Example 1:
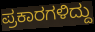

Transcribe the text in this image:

ಪ್ರಕಾರಗಳಿದ್ದು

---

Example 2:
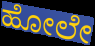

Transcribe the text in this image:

ಹೋಲೇ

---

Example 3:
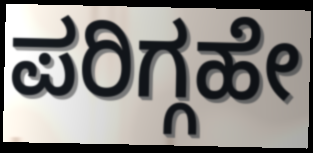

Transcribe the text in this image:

ಪರಿಗ್ಗಹೇ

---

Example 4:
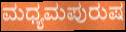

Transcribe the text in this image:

ಮಧ್ಯಮಪುರುಷ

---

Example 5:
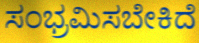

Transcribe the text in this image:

ಸಂಭ್ರಮಿಸಬೇಕಿದೆ